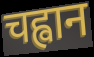
चह्वान